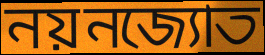
নয়নজ্যোত